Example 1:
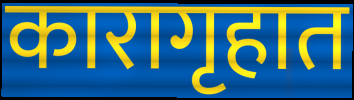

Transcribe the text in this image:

कारागृहात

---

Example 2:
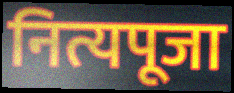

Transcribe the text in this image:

नित्यपूजा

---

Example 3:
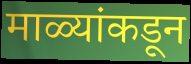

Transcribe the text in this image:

माळ्यांकडून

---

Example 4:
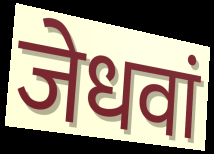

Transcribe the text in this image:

जेधवां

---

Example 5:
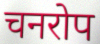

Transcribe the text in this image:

चनरोप